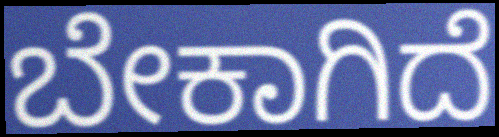
ಬೇಕಾಗಿದೆ